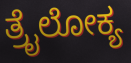
ತ್ರೈಲೋಕ್ಯ